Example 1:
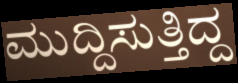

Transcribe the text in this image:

ಮುದ್ದಿಸುತ್ತಿದ್ದ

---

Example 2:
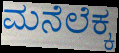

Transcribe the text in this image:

ಮನೆಲೆಕ್ಕ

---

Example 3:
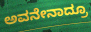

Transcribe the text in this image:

ಅವನೇನಾದ್ರೂ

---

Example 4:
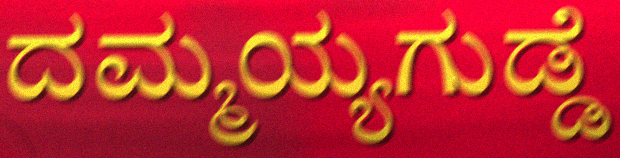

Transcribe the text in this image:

ದಮ್ಮಯ್ಯಗುಡ್ಡೆ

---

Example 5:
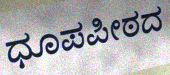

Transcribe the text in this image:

ಧೂಪಪೀಠದ